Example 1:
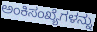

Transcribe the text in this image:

ಅಂಕಿಸಂಖ್ಯೆಗಳನ್ನು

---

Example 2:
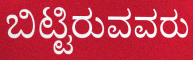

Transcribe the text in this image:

ಬಿಟ್ಟಿರುವವರು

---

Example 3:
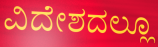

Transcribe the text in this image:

ವಿದೇಶದಲ್ಲೂ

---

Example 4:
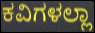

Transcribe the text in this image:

ಕವಿಗಳಲ್ಲಾ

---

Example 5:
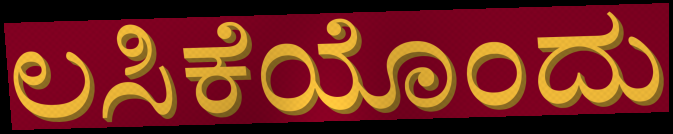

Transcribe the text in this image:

ಲಸಿಕೆಯೊಂದು